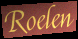
Roelen